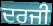
ਦਰਜੀ